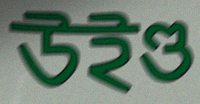
উইণ্ড